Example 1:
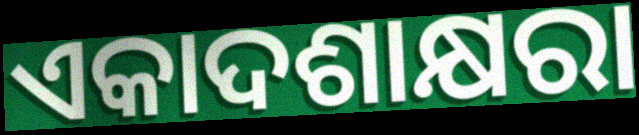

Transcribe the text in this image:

ଏକାଦଶାକ୍ଷରା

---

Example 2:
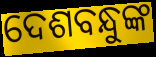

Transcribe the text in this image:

ଦେଶବନ୍ଧୁଙ୍କ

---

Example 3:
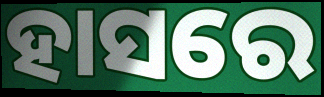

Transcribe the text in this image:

ହାସରେ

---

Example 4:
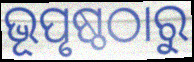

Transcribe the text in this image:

ଭୂପୃଷ୍ଠଠାରୁ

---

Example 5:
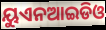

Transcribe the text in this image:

ୟୁଏନଆଇଡିଓ